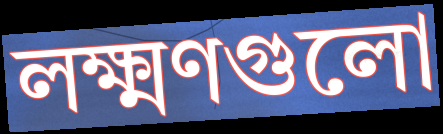
লক্ষ্মণগুলো